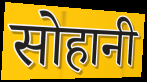
सोहानी